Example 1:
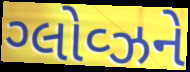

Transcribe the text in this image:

ગ્લોવ્ઝને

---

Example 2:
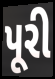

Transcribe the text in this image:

પૂરી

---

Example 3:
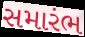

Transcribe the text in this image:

સમારંભ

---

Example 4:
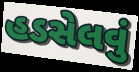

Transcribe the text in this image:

હડસેલવું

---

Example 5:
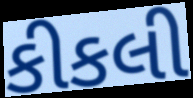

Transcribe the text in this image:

કીકલી